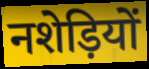
नशेड़ियों